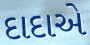
દાદાએ